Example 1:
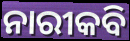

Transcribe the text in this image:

ନାରୀକବି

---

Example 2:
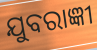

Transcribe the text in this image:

ଯୁବରାଜ୍ଞୀ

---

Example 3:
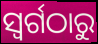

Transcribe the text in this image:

ସ୍ଵର୍ଗଠାରୁ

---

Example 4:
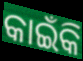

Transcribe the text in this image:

କାଇଁକି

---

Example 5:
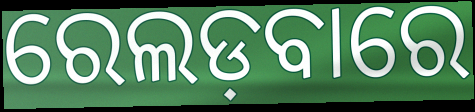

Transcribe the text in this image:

ରେଲଡ଼ବାରେ